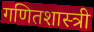
गणितशास्त्री